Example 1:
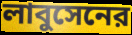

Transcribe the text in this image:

লাবুসেনের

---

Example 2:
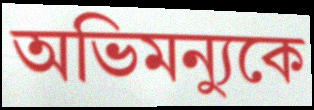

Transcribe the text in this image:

অভিমন্যুকে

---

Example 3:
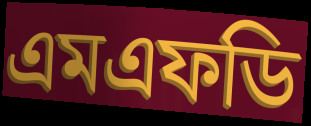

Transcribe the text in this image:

এমএফডি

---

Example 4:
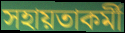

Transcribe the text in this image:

সহায়তাকর্মী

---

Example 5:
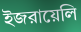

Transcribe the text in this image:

ইজরায়েলি